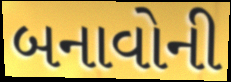
બનાવોની